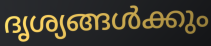
ദൃശ്യങ്ങൾക്കും